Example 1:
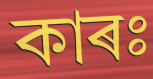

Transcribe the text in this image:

কাৰঃ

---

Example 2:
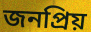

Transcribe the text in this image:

জনপ্ৰিয়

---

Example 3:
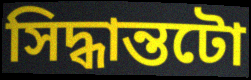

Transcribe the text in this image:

সিদ্ধান্তটো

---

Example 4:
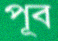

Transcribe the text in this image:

পূব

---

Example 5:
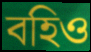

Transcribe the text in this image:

বহিও